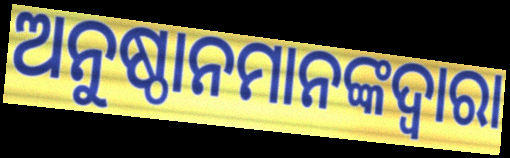
ଅନୁଷ୍ଠାନମାନଙ୍କଦ୍ଵାରା